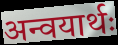
अन्वयार्थः